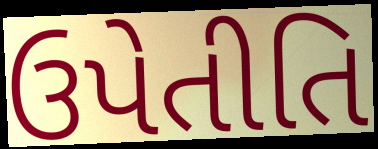
ઉપેતીતિ